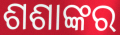
ଶଶାଙ୍କର